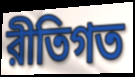
রীতিগত